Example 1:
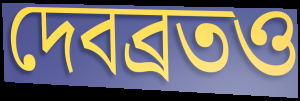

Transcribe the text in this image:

দেবব্রতও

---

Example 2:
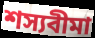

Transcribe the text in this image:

শস্যবীমা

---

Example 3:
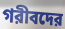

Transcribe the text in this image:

গরীবদের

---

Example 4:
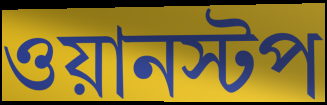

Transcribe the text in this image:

ওয়ানস্টপ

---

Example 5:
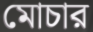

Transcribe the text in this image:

মোচার